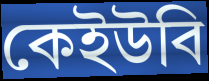
কেইউবি